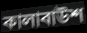
কালাবাউশ